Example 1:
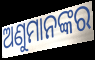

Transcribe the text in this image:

ଅଣୁମାନଙ୍କର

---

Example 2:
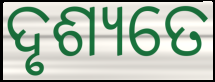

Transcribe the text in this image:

ଦୃଶ୍ୟତେ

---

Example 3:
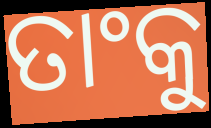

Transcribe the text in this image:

ତାଂକୁ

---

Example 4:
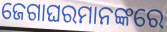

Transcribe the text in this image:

ଜେଗାଘରମାନଙ୍କରେ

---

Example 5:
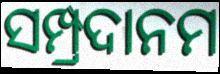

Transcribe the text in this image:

ସମ୍ପ୍ରଦାନମ